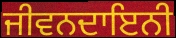
ਜੀਵਨਦਾਇਨੀ